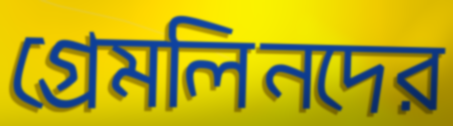
গ্রেমলিনদের